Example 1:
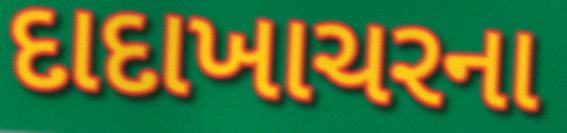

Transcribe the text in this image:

દાદાખાચરના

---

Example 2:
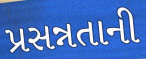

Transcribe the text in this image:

પ્રસન્નતાની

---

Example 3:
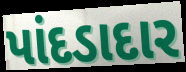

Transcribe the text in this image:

પાંદડાદાર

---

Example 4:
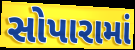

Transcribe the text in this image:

સોપારામાં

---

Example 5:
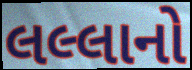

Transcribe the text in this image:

લલ્લાનો